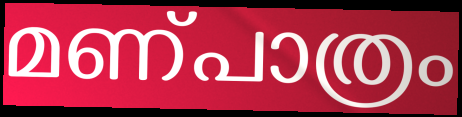
മണ്പാത്രം